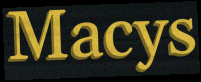
Macys